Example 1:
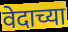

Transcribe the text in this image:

वेदाच्या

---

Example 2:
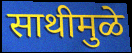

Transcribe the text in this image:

साथीमुळे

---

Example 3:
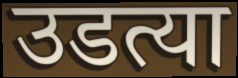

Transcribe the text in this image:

उडत्या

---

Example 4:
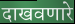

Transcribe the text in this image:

दाखवणारे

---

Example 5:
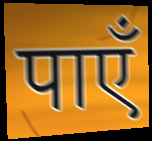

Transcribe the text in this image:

पाएँ